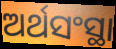
ଅର୍ଥସଂସ୍ଥା